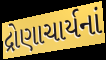
દ્રોણાચાર્યનાં